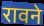
रावने